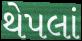
થેપલાં